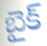
బైక్